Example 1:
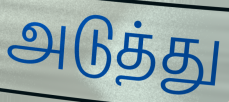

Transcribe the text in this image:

அடுத்து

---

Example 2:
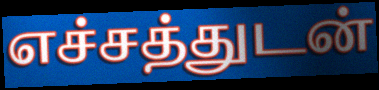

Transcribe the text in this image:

எச்சத்துடன்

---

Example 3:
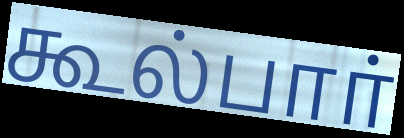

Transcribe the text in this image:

கூல்பார்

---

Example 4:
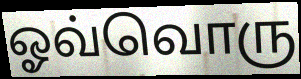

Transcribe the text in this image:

ஓவ்வொரு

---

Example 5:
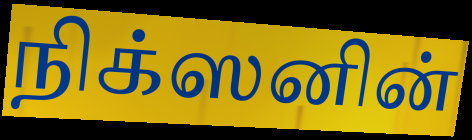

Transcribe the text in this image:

நிக்ஸனின்